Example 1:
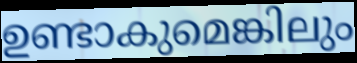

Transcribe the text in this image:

ഉണ്ടാകുമെങ്കിലും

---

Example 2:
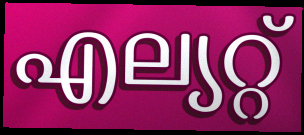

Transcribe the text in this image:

എല്യറ്റ്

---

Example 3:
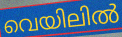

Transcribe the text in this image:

വെയിലിൽ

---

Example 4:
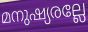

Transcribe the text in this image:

മനുഷ്യരല്ലേ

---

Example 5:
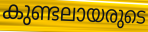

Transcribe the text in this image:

കുണ്ടലായരുടെ